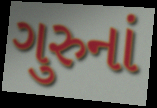
ગુરુનાં